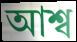
আশ্ব